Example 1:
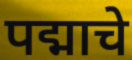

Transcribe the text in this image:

पद्माचे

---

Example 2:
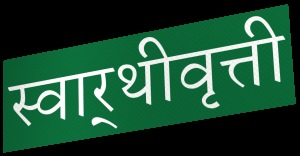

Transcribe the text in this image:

स्वार्थीवृत्ती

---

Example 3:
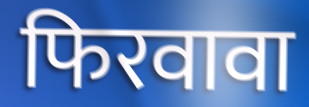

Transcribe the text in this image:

फिरवावा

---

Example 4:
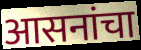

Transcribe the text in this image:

आसनांचा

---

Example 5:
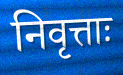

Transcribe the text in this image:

निवृत्ताः